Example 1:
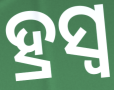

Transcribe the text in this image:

ହ୍ରସ୍ୱ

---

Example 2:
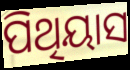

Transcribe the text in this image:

ପିଥିୟାସ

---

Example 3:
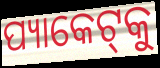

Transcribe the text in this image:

ପ୍ୟାକେଟ୍‌କୁ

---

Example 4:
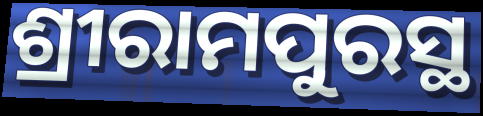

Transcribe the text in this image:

ଶ୍ରୀରାମପୁରସ୍ଥ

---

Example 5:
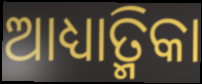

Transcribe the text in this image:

ଆଧ୍ୟାତ୍ମିକା